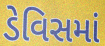
ડેવિસમાં